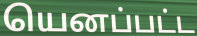
யெனப்பட்ட